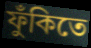
ফুঁকিতে